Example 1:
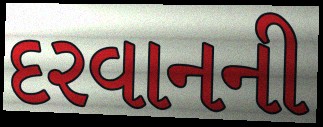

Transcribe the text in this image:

દરવાનની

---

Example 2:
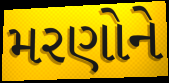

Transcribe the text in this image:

મરણોને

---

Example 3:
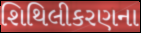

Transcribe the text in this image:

શિથિલીકરણના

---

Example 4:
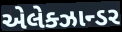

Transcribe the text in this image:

એલેક્ઝાન્ડર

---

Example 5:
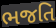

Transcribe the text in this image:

ભજતિ